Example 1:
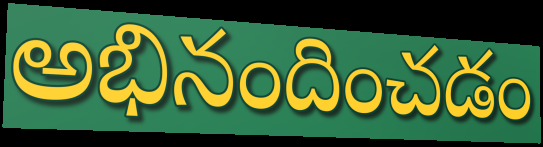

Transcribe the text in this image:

అభినందించడం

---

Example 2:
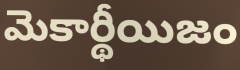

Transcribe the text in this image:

మెకార్థీయిజం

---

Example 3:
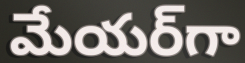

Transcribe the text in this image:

మేయర్‌గా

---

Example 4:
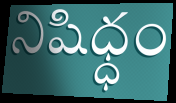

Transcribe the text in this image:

నిషిధ్ధం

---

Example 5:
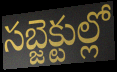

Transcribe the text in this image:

సబ్జెక్టుల్లో